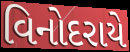
વિનોદરાયે